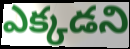
ఎక్కడని